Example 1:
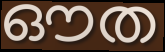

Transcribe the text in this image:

ഔത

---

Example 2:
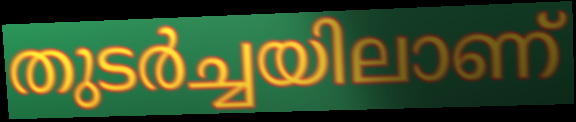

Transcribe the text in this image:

തുടർച്ചയിലാണ്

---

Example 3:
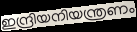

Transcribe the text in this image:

ഇന്ദ്രിയനിയന്ത്രണം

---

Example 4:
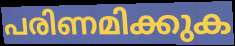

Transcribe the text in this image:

പരിണമിക്കുക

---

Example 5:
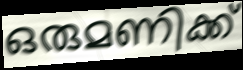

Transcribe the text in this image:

ഒരുമണിക്ക്